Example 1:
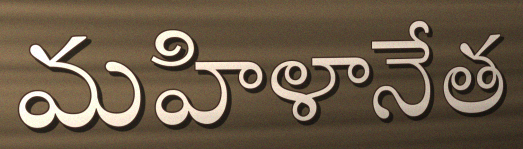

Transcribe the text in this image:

మహిళానేత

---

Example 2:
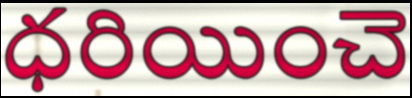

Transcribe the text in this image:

ధరియించె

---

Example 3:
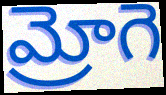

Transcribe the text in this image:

మ్రోగె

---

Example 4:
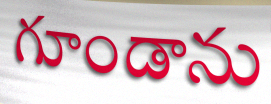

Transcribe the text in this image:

గూండాను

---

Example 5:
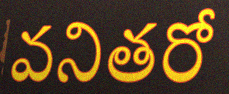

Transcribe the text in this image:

వనితరో